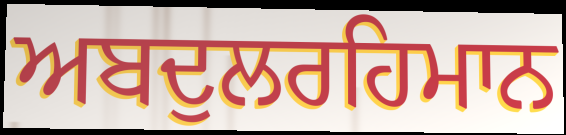
ਅਬਦੁਲਰਹਿਮਾਨ